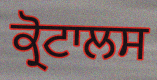
ਕ੍ਰੋਟਾਲਸ